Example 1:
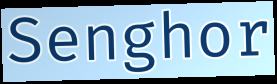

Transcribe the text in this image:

Senghor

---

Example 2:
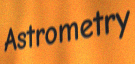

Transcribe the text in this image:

Astrometry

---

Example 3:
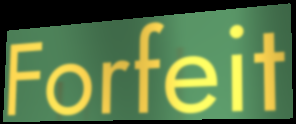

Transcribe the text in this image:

Forfeit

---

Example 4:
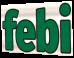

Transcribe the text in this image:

febi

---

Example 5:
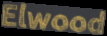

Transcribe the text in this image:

Elwood